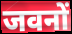
जवनों